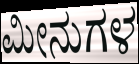
ಮೀನುಗಳ